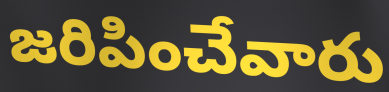
జరిపించేవారు